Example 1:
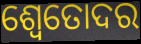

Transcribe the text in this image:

ଶ୍ୱେତୋଦର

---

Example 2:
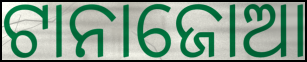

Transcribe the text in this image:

ଟାନାଜୋଆ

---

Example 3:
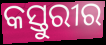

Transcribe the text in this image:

କସ୍ତୁରୀର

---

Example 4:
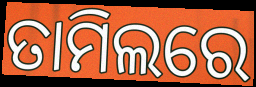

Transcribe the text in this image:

ତାମିଲରେ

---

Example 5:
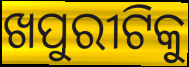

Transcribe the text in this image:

ଖପୁରୀଟିକୁ